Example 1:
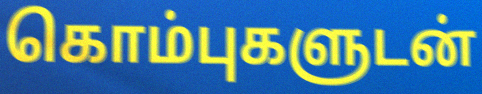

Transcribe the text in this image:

கொம்புகளுடன்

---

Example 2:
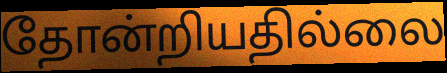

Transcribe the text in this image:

தோன்றியதில்லை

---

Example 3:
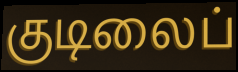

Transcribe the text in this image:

குடிலைப்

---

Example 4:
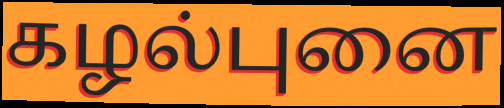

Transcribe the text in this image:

கழல்புனை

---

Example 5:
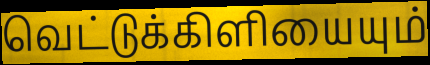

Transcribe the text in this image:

வெட்டுக்கிளியையும்